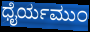
ಧೈರ್ಯಮುಂ